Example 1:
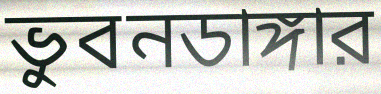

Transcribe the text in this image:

ভুবনডাঙ্গার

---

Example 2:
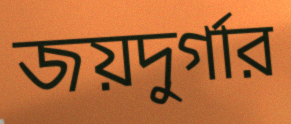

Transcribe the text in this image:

জয়দুর্গার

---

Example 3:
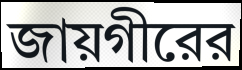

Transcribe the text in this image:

জায়গীরের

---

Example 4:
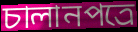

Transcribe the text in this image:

চালানপত্রে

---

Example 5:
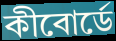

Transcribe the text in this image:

কীবোর্ডে